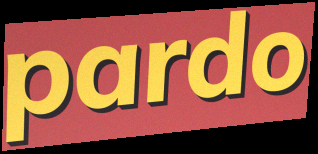
pardo